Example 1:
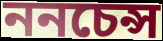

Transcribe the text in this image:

ননচেন্স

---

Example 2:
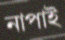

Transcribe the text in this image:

নাপাই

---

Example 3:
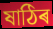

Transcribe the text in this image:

ষাঠিৰ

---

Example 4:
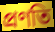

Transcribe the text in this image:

প্ৰণতি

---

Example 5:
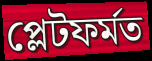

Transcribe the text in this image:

প্লেটফৰ্মত